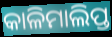
କାଳିମାଲିପ୍ତ